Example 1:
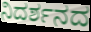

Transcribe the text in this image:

ನಿದರ್ಶನದ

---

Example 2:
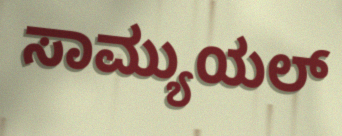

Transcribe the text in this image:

ಸಾಮ್ಯುಯಲ್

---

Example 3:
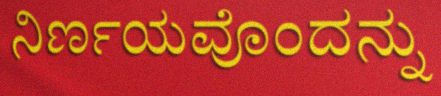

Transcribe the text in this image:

ನಿರ್ಣಯವೊಂದನ್ನು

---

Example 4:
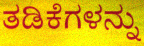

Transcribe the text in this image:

ತಡಿಕೆಗಳನ್ನು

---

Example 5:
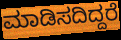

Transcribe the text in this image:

ಮಾಡಿಸದಿದ್ದರೆ